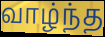
வாழ்ந்த